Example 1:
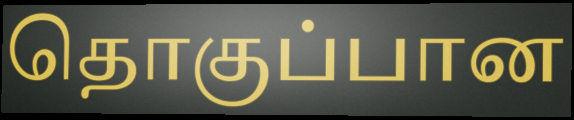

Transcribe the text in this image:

தொகுப்பான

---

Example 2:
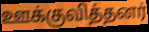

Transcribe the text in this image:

ஊக்குவித்தனர்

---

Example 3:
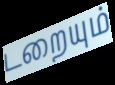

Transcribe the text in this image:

டறையும்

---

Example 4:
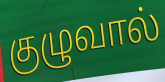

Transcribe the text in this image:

குழுவால்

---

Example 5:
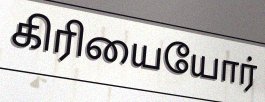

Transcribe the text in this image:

கிரியையோர்